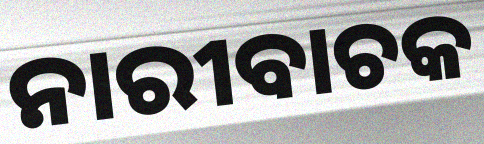
ନାରୀବାଚକ